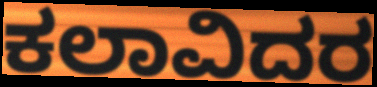
ಕಲಾವಿದರ